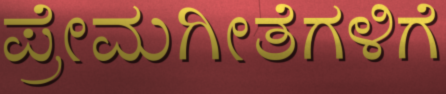
ಪ್ರೇಮಗೀತೆಗಳಿಗೆ